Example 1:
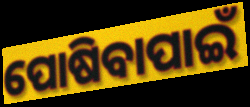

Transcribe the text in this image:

ପୋଷିବାପାଇଁ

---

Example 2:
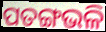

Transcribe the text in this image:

ପତଙ୍ଗଭଳି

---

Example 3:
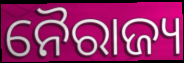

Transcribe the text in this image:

ନୈରାଜ୍ୟ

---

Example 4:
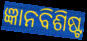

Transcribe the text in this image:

ଜ୍ଞାନବିଶିଷ୍ଟ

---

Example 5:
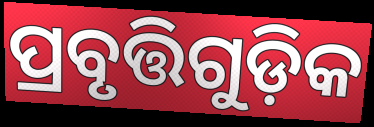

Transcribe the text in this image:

ପ୍ରବୃତ୍ତିଗୁଡ଼ିକ